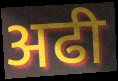
अढी